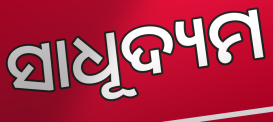
ସାଧୂଦ୍ୟମ